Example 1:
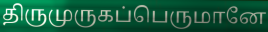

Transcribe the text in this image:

திருமுருகப்பெருமானே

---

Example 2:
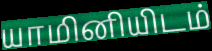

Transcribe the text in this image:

யாமினியிடம்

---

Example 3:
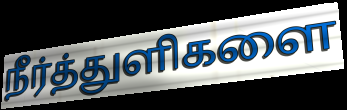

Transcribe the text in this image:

நீர்த்துளிகளை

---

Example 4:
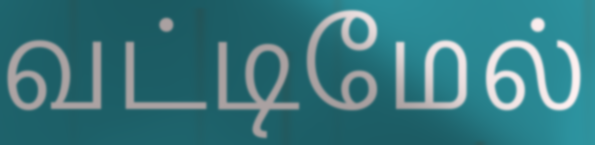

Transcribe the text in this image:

வட்டிமேல்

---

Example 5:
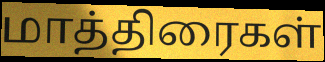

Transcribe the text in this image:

மாத்திரைகள்